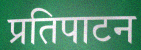
प्रतिपाटन